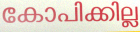
കോപിക്കില്ല